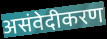
असंवेदीकरण